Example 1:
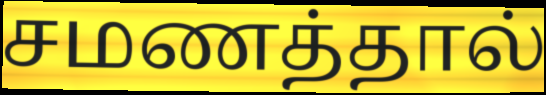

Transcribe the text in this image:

சமணத்தால்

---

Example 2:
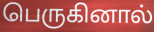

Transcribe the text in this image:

பெருகினால்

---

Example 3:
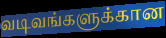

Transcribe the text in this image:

வடிவங்களுக்கான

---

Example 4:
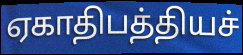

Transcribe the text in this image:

ஏகாதிபத்தியச்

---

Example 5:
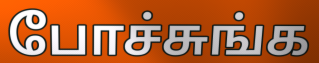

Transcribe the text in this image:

போச்சுங்க